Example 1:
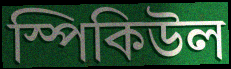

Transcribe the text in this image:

স্পিকিউল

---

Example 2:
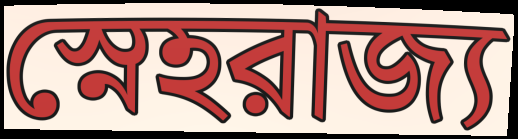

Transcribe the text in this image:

স্নেহরাজ্য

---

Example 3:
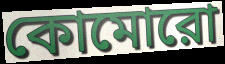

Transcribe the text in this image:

কোমোরো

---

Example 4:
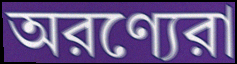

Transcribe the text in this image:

অরণ্যেরা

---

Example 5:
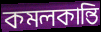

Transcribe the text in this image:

কমলকান্তি